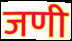
जणी